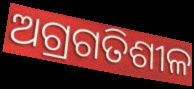
ଅଗ୍ରଗତିଶୀଳ